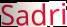
Sadri